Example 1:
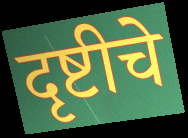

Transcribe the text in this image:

दृष्टीचे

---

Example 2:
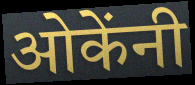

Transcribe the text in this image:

ओकेंनी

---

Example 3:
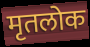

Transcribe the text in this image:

मृतलोक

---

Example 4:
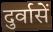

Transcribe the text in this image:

दुर्वासें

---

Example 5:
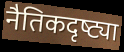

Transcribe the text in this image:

नैतिकदृष्ट्या